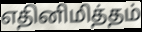
எதினிமித்தம்